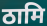
ठामि